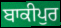
ਬਾਕੀਪੁਰ